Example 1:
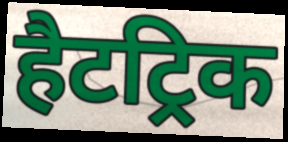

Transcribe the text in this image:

हैटट्रिक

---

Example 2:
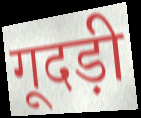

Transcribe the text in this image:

गूदड़ी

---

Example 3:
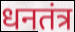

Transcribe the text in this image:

धनतंत्र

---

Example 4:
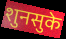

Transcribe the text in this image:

शुनसुके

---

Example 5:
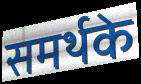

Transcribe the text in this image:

समर्थके